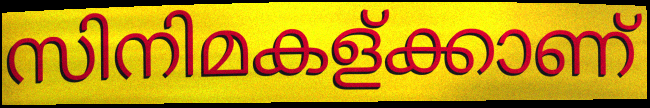
സിനിമകള്ക്കാണ്